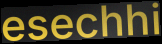
esechhi